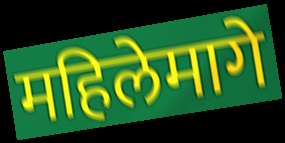
महिलेमागे